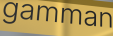
gamman